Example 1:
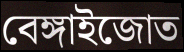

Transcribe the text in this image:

বেঙ্গাইজোত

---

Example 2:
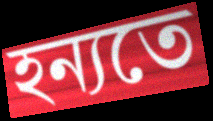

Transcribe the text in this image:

হন্যতে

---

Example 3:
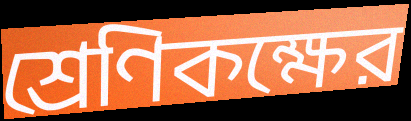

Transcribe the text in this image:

শ্রেণিকক্ষের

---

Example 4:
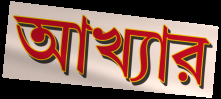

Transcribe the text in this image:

আখ্যার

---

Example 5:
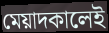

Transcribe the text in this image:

মেয়াদকালেই